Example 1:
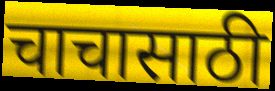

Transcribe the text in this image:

चाचासाठी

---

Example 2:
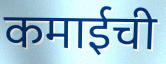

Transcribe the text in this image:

कमाईची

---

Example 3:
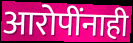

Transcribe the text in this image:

आरोपींनाही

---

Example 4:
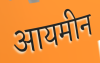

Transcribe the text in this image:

आयमीन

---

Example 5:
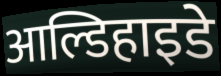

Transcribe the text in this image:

आल्डिहाइडे